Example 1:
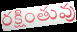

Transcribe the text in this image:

రక్షింతువు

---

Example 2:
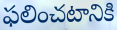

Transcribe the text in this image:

ఫలించటానికి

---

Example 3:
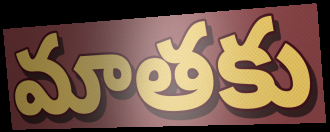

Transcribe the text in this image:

మాతకు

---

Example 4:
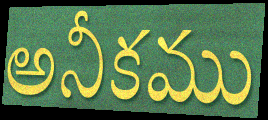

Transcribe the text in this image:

అనీకము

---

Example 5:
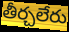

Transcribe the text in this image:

తీర్చలేరు